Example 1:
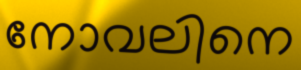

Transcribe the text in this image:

നോവലിനെ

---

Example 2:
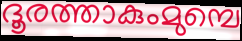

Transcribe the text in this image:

ദൂരത്താകുംമുമ്പെ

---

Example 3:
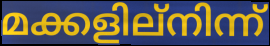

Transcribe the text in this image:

മക്കളില്നിന്ന്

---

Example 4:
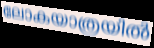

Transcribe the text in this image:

ലോകയാത്രയിൽ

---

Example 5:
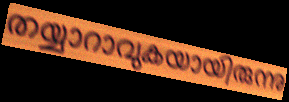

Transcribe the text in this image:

തയ്യാറാവുകയായിരുന്നു